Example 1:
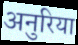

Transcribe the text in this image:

अनुरिया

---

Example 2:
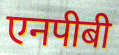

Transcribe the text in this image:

एनपीबी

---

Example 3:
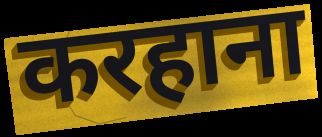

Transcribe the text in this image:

करहाना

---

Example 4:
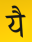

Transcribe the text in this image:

यै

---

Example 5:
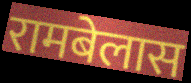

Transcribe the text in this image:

रामबेलास